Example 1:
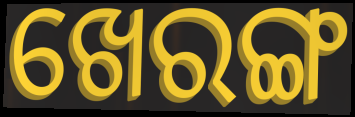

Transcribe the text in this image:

ଖେରଙ୍ଗ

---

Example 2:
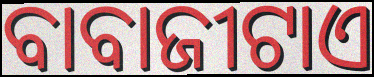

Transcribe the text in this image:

ବାବାଜୀଟାଏ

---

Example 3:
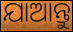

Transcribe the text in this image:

ଯାଆନ୍ତୁ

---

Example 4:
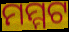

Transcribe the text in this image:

ମମ୍ମଟ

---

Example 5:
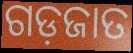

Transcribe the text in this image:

ଗଡ଼ଜାତ